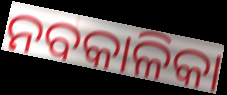
ନବକାଳିକା